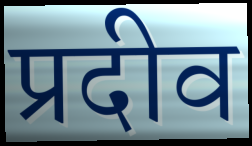
प्रदीव